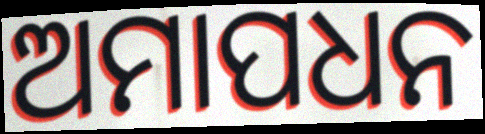
ଅମାପଧନ